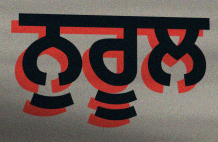
ਨੁਰੂਲ